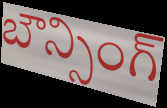
బౌన్సింగ్